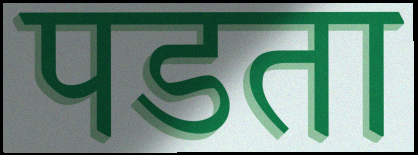
पडता